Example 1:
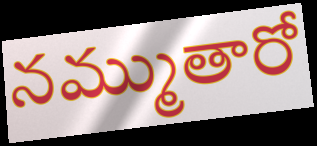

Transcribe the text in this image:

నమ్ముతారో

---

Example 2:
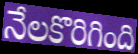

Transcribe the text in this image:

నేలకొరిగింది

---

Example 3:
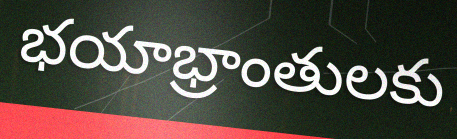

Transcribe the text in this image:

భయాభ్రాంతులకు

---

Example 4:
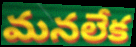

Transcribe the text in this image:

మనలేక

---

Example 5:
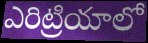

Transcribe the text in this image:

ఎరిట్రియాలో